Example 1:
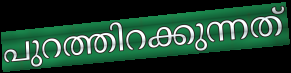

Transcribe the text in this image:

പുറത്തിറക്കുന്നത്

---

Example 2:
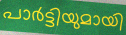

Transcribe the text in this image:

പാർട്ടിയുമായി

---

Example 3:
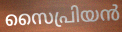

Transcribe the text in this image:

സൈപ്രിയൻ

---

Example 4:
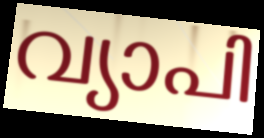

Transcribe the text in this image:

വ്യാപി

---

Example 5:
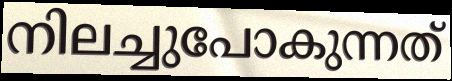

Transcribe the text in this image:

നിലച്ചുപോകുന്നത്